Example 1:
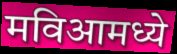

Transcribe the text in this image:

मविआमध्ये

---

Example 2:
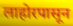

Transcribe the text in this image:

लाहोरपासून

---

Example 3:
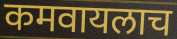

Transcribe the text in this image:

कमवायलाच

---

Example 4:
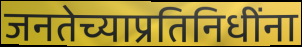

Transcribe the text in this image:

जनतेच्याप्रतिनिधींना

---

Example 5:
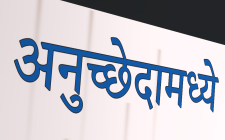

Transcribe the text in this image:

अनुच्छेदामध्ये